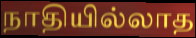
நாதியில்லாத